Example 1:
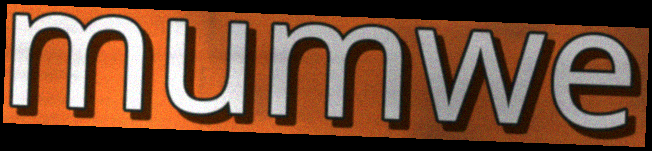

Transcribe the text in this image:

mumwe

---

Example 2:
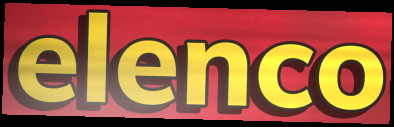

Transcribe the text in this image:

elenco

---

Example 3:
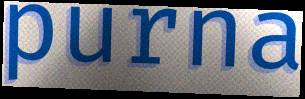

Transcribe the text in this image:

purna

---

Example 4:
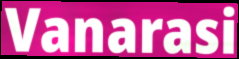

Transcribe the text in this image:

Vanarasi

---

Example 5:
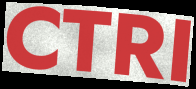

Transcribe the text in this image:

CTRI